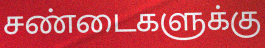
சண்டைகளுக்கு